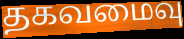
தகவமைவு